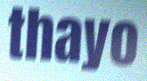
thayo